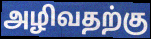
அழிவதற்கு